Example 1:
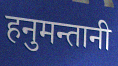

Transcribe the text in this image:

हनुमन्तानी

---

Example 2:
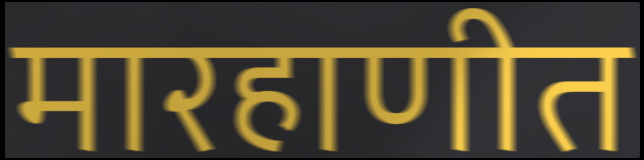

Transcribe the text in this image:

मारहाणीत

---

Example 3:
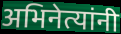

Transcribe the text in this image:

अभिनेत्यांनी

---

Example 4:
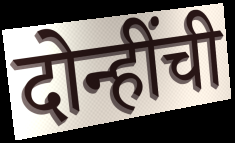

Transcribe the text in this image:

दोन्हींची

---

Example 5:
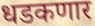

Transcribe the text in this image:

धडकणार